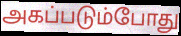
அகப்படும்போது